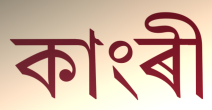
কাংৰী